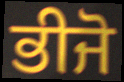
ਭੀਜੋ